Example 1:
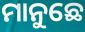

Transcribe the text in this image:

ମାନୁଛେ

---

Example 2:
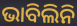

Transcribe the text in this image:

ଭାବିଲିନି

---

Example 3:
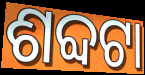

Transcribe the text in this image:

ଶବ୍ଦଟା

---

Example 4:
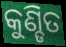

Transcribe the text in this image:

କୁଣ୍ଡିତ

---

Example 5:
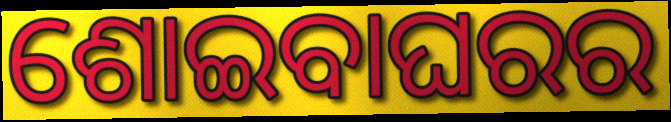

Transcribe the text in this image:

ଶୋଇବାଘରର